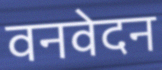
वनवेदन